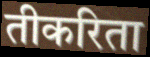
तीकरिता